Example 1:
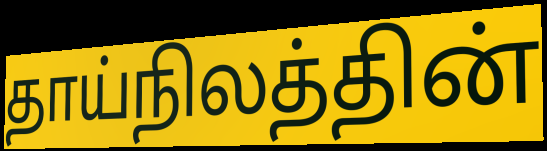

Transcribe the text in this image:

தாய்நிலத்தின்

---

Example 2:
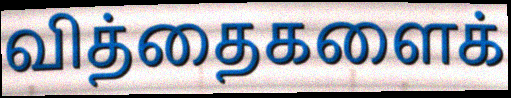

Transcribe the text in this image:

வித்தைகளைக்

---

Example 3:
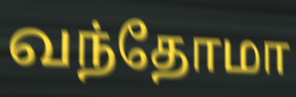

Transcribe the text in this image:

வந்தோமா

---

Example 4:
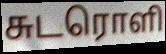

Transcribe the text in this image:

சுடரொளி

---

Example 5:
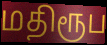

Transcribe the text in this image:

மதிரூப